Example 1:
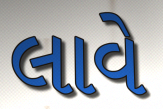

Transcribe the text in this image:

લાવે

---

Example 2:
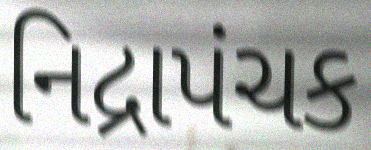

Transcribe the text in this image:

નિદ્રાપંચક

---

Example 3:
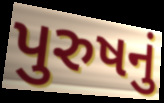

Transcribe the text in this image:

પુરુષનું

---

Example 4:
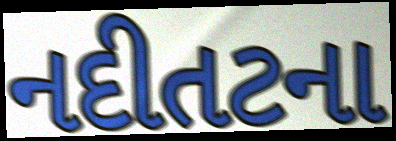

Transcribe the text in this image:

નદીતટના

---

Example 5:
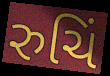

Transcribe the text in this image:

રુચિં